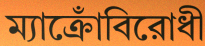
ম্যাক্রোঁবিরোধী